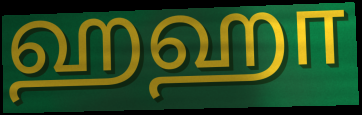
ஹஹா